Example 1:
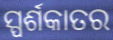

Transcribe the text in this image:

ସ୍ପର୍ଶକାତର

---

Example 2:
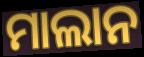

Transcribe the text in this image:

ମାଲାନ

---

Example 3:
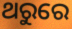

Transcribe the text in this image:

ଥରୁରେ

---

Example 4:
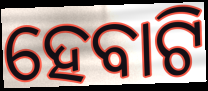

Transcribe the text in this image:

ହେବାଟି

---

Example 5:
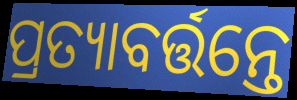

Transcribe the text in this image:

ପ୍ରତ୍ୟାବର୍ତ୍ତନ୍ତେ